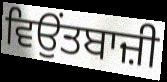
ਵਿਉਂਤਬਾਜ਼ੀ